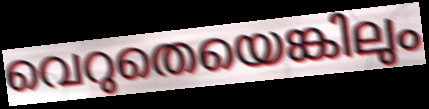
വെറുതെയെങ്കിലും